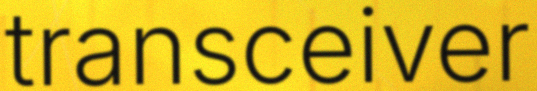
transceiver